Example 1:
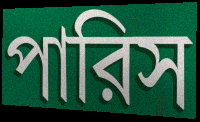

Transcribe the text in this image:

পারিস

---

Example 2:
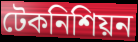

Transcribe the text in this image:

টেকনিশিয়ন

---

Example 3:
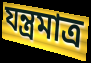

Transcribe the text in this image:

যন্ত্রমাত্র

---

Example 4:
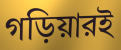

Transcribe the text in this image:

গড়িয়ারই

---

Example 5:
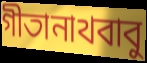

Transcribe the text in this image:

গীতানাথবাবু